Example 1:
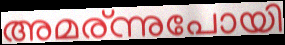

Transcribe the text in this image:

അമര്ന്നുപോയി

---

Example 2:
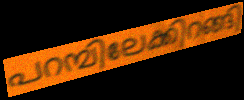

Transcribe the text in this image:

പറമ്പിലേക്കിറങ്ങി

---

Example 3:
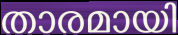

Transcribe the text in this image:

താരമായി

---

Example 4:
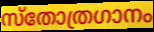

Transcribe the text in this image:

സ്തോത്രഗാനം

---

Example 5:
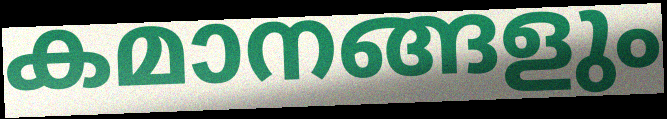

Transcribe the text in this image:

കമാനങ്ങളും